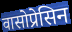
वासोप्रेसिन